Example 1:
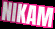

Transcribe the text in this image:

NIKAM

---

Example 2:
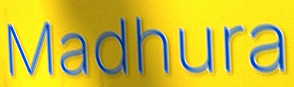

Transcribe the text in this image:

Madhura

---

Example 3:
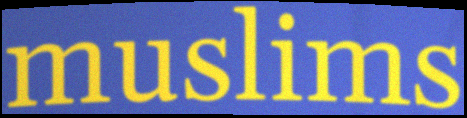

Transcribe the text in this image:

muslims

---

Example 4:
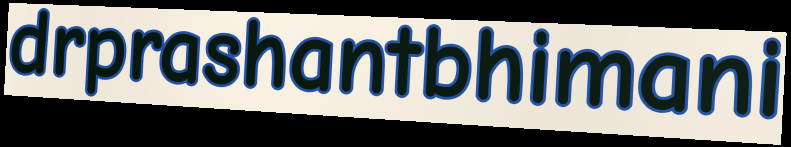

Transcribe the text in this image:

drprashantbhimani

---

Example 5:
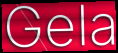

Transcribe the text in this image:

Gela